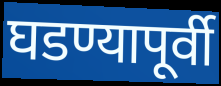
घडण्यापूर्वी